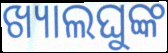
ଖ୍ୟାଲଘୁଙ୍କ